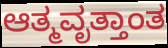
ಆತ್ಮವೃತ್ತಾಂತ